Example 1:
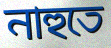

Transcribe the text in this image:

নাহুতে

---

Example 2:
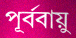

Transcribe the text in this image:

পূর্ববায়ু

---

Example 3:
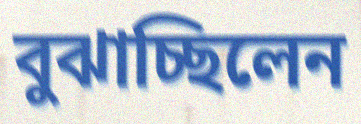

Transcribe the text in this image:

বুঝাচ্ছিলেন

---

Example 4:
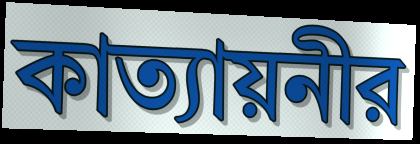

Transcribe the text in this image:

কাত্যায়নীর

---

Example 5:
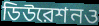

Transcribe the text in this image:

ডিউরেশনও